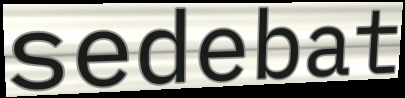
sedebat